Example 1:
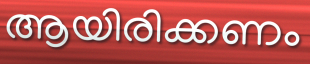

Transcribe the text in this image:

ആയിരിക്കണം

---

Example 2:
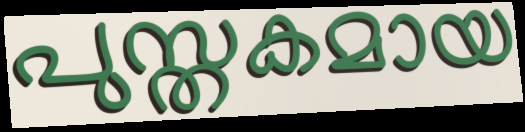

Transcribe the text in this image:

പുസ്തകമായ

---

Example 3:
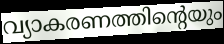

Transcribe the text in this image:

വ്യാകരണത്തിന്റെയും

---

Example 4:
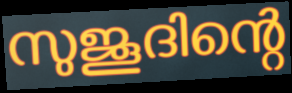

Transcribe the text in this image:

സുജൂദിന്റെ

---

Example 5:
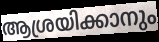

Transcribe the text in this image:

ആശ്രയിക്കാനും